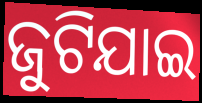
ଜୁଟିଯାଇ